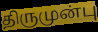
திருமுன்பு